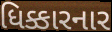
ધિક્કારનાર